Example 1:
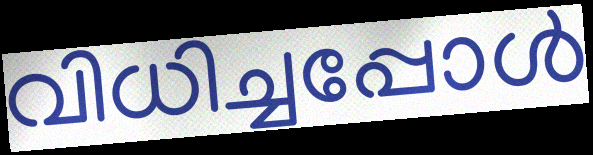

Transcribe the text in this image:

വിധിച്ചപ്പോൾ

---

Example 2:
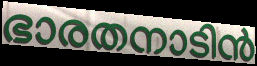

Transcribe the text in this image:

ഭാരതനാടിൻ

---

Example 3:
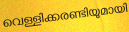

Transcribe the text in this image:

വെള്ളിക്കരണ്ടിയുമായി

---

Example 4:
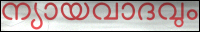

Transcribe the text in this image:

ന്യായവാദവും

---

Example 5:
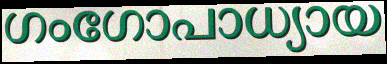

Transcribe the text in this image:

ഗംഗോപാധ്യായ